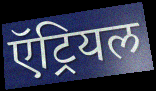
ऍट्रियल